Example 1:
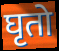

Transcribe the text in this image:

घृतो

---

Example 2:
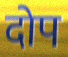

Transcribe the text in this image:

दोप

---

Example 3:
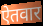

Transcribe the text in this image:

ऐतवार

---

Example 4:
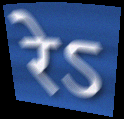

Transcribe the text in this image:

रेऽ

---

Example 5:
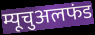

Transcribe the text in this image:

म्यूचुअलफंड